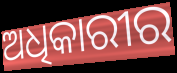
ଅଧିକାରୀର